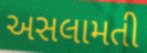
અસલામતી